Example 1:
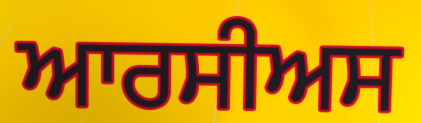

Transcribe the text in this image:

ਆਰਸੀਅਸ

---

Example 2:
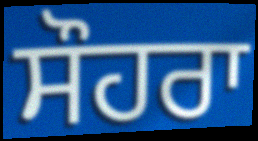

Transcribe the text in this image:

ਸੌਹਰਾ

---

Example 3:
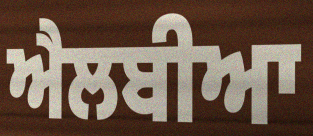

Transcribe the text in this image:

ਐਲਬੀਆ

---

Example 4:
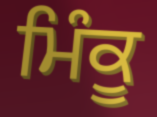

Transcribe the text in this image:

ਮਿੰਕੂ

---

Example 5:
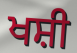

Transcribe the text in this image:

ਖਸ਼ੀ